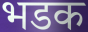
भडक